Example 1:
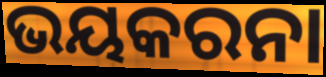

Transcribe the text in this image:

ଭୟକରନା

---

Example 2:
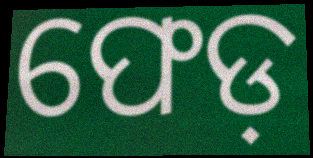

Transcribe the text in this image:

ଫେଡ଼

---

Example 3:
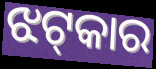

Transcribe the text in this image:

ଝଟ୍‍କାର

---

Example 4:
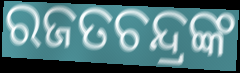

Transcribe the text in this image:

ରଜତଚନ୍ଦ୍ରଙ୍କ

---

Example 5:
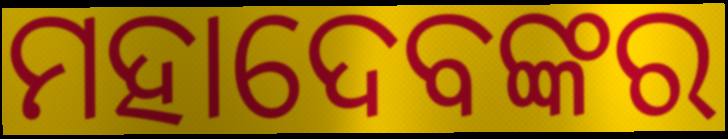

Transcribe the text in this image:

ମହାଦେବଙ୍କର